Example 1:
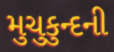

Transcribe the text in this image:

મુચુકુન્દની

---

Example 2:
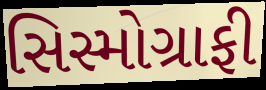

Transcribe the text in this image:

સિસ્મોગ્રાફી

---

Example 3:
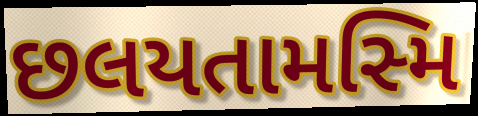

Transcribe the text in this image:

છલયતામસ્મિ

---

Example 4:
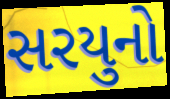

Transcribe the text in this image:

સરયુનો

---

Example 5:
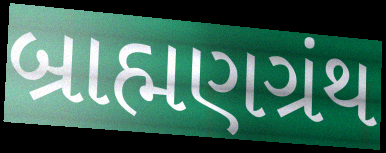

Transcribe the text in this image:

બ્રાહ્મણગ્રંથ